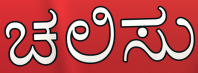
ಚಲಿಸು